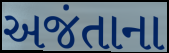
અજંતાના